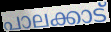
പാലക്കാട്